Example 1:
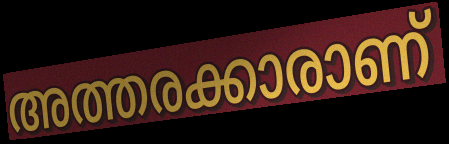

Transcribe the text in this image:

അത്തരക്കാരാണ്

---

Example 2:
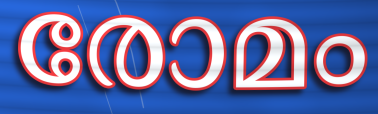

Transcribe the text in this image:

രോമം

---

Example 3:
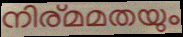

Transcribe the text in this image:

നിര്മമതയും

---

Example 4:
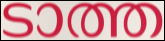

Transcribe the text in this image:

ടാത്ത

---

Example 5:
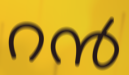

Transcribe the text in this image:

റൻ